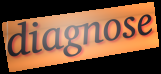
diagnose